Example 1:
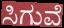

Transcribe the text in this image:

ಸಿಗುವೆ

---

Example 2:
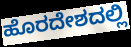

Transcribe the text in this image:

ಹೊರದೇಶದಲ್ಲಿ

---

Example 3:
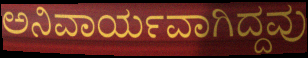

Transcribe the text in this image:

ಅನಿವಾರ್ಯವಾಗಿದ್ದವು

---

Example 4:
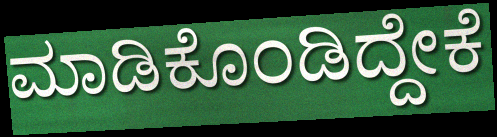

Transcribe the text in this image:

ಮಾಡಿಕೊಂಡಿದ್ದೇಕೆ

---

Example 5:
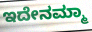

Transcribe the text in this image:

ಇದೇನಮ್ಮಾ